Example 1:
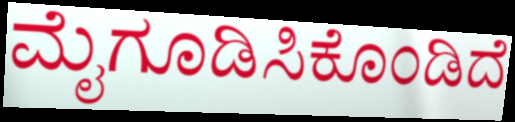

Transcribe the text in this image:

ಮೈಗೂಡಿಸಿಕೊಂಡಿದೆ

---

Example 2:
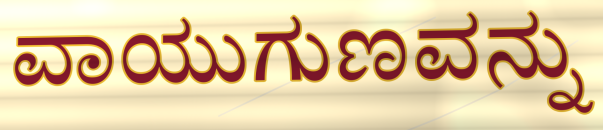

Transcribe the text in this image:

ವಾಯುಗುಣವನ್ನು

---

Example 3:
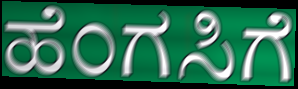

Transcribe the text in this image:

ಹೆಂಗಸಿಗೆ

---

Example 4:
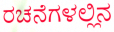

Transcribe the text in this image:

ರಚನೆಗಳಲ್ಲಿನ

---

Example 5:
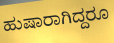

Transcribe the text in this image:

ಹುಷಾರಾಗಿದ್ದರೂ